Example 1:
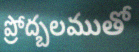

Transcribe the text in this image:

ప్రోద్బలముతో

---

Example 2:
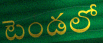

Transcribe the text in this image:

టెండలో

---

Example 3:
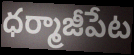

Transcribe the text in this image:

ధర్మాజీపేట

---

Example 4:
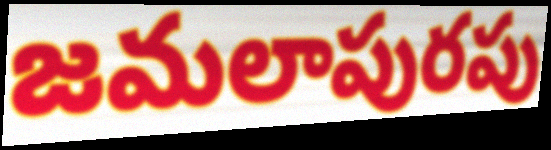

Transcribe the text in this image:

జమలాపురపు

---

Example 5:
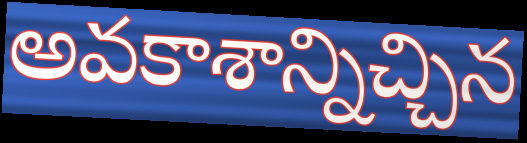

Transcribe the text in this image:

అవకాశాన్నిచ్చిన